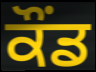
ਕੌਂਡ